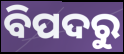
ବିପଦରୁ